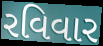
રવિવાર